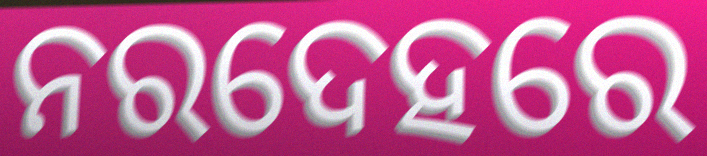
ନରଦେହରେ